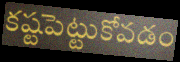
కష్టపెట్టుకోవడం